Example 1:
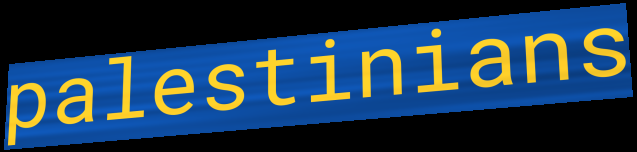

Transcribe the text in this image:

palestinians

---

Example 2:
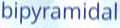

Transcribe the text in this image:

bipyramidal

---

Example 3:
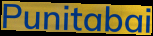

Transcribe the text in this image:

Punitabai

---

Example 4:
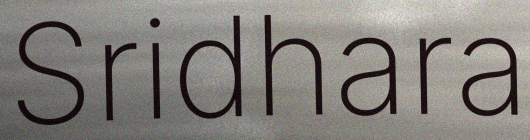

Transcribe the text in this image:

Sridhara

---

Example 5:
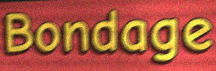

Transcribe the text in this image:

Bondage